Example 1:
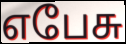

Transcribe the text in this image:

எபேசு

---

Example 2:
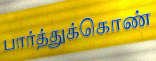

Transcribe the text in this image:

பார்த்துக்கொண்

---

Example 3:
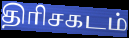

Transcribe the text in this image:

திரிசகடம்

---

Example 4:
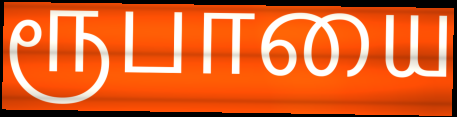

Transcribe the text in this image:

ரூபாயை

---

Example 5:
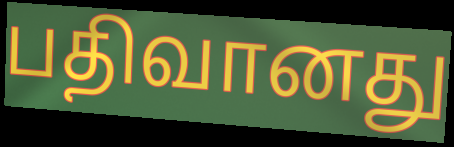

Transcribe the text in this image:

பதிவானது